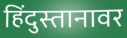
हिंदुस्तानावर